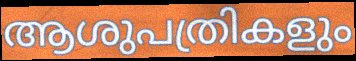
ആശുപത്രികളും